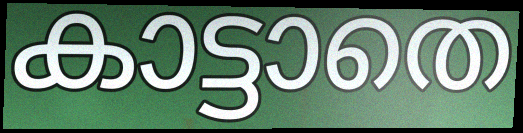
കാട്ടാതെ